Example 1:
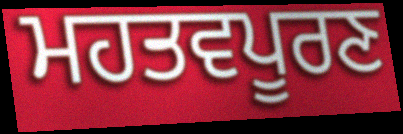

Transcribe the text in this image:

ਮਹਤਵਪੂਰਣ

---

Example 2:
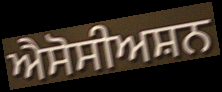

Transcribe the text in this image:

ਐਸੋਸੀਅਸ਼ਨ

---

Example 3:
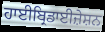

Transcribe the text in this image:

ਹਾਈਬ੍ਰਿਡਾਈਜ਼ੇਸ਼ਨ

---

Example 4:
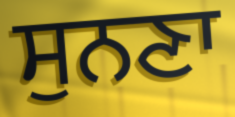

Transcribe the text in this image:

ਸੁਨਣਾ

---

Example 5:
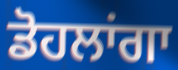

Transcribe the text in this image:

ਡੋਹਲਾਂਗਾ